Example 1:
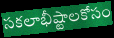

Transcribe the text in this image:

సకలాభీష్టాలకోసం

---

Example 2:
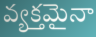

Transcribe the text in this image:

వ్యక్తమైనా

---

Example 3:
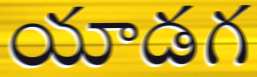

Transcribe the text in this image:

యాడగ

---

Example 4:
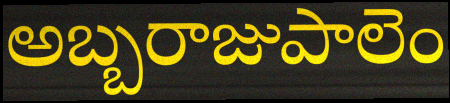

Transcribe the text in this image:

అబ్బరాజుపాలెం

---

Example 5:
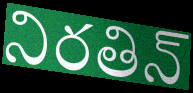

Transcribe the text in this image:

నిరతిన్